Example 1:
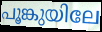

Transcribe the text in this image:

പൂങ്കുയിലേ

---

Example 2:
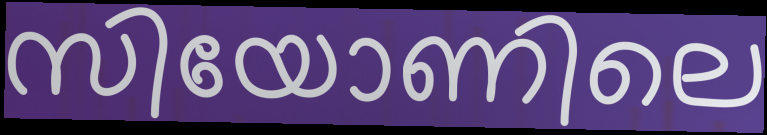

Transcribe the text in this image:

സിയോണിലെ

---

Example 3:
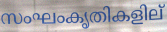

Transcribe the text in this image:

സംഘംകൃതികളില്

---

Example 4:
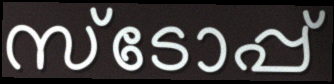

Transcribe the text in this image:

സ്ടോപ്പ്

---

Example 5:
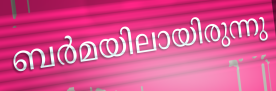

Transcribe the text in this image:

ബർമയിലായിരുന്നു